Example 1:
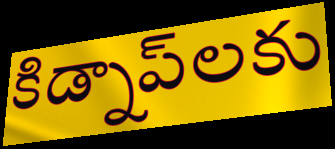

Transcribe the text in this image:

కిడ్నాప్‌లకు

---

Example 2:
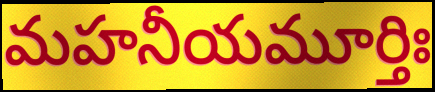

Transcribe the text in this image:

మహనీయమూర్తిః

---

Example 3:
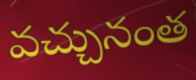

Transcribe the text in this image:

వచ్చునంత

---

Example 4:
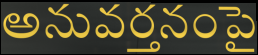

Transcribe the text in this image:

అనువర్తనంపై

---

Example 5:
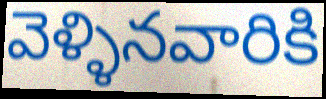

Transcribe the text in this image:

వెళ్ళినవారికి